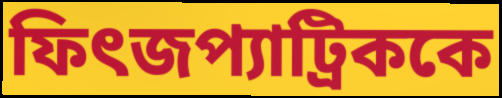
ফিৎজপ্যাট্রিককে